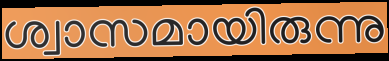
ശ്വാസമായിരുന്നു